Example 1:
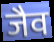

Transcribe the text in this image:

जैव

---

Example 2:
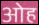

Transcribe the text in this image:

ओह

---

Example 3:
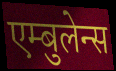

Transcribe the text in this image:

एम्बुलेन्स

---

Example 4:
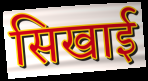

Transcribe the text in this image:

सिखाई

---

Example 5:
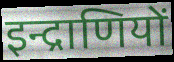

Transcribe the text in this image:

इन्द्राणियों